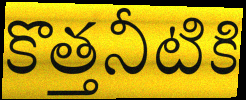
కొత్తనీటికి